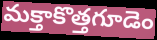
మక్తాకొత్తగూడెం